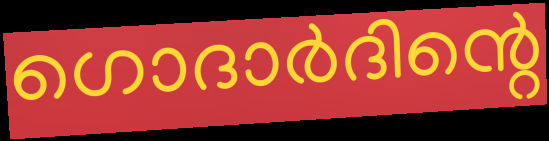
ഗൊദാർദിന്റെ